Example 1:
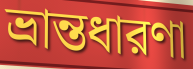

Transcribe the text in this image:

ভ্রান্তধারণা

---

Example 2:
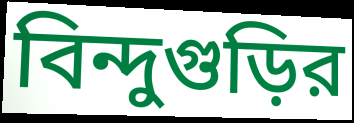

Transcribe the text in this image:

বিন্দুগুড়ির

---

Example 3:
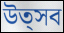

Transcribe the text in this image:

উত্সব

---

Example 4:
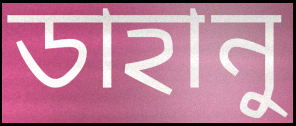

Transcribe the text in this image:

ডাহানু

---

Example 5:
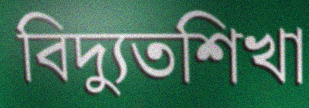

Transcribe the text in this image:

বিদ্যুতশিখা